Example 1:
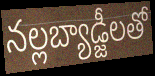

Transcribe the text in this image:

నల్లబ్యాడ్జీలతో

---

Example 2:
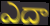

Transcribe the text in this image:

ఎదా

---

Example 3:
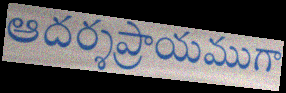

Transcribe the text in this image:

ఆదర్శప్రాయముగా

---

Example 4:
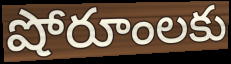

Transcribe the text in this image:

షోరూంలకు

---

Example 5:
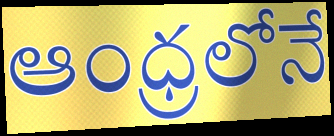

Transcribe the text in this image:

ఆంధ్రలోనే